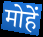
मोहें